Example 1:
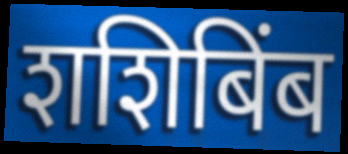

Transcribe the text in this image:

शशिबिंब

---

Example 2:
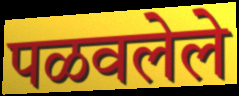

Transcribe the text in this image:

पळवलेले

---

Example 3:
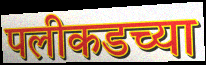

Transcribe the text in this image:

पलीकडच्या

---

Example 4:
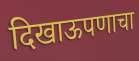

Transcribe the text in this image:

दिखाऊपणाचा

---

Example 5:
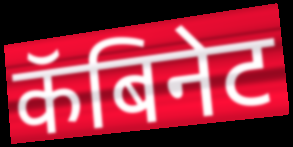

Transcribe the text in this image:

कॅबिनेट